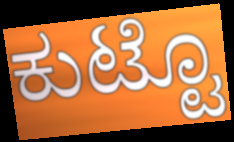
ಕುಟ್ಟೊ